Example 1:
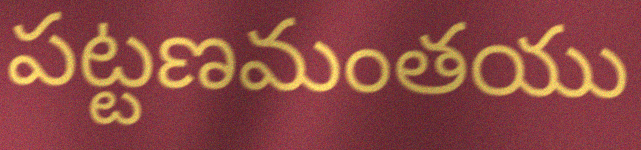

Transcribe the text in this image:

పట్టణమంతయు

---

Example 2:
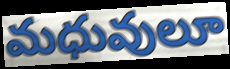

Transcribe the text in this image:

మధువులూ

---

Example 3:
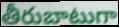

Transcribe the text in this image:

తీరుబాటుగా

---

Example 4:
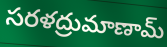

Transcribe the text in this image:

సరళద్రుమాణామ్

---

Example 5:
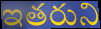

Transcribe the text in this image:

ఇతరుని